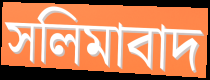
সলিমাবাদ